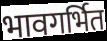
भावगर्भित